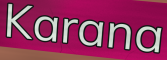
Karana